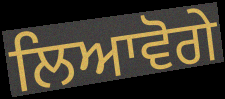
ਲਿਆਵੋਗੇ